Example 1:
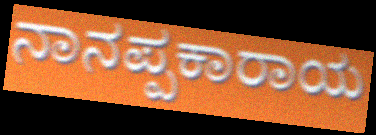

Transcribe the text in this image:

ನಾನಪ್ಪಕಾರಾಯ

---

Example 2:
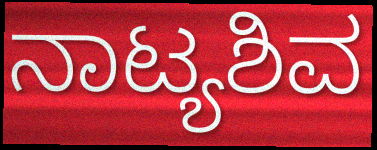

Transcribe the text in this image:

ನಾಟ್ಯಶಿವ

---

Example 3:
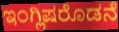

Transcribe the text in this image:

ಇಂಗ್ಲಿಷರೊಡನೆ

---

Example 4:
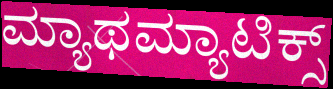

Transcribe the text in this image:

ಮ್ಯಾಥಮ್ಯಾಟಿಕ್ಸ್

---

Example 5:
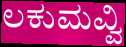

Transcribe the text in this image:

ಲಕುಮವ್ವಿ